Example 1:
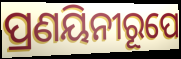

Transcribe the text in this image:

ପ୍ରଣୟିନୀରୂପେ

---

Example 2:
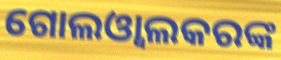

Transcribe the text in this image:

ଗୋଲଓ୍ଵାଲକରଙ୍କ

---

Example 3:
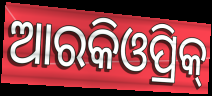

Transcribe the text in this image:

ଆରକିଓପ୍ରିକ୍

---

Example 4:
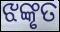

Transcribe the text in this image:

ଝଙ୍କୃତ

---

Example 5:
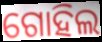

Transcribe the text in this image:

ଗୋହିଲ